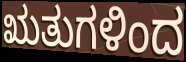
ಋತುಗಳಿಂದ